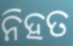
ନିହତ